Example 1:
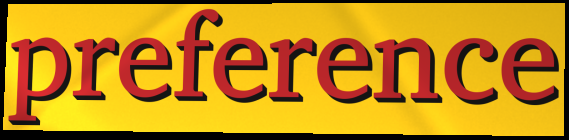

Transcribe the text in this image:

preference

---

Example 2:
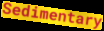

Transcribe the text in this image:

Sedimentary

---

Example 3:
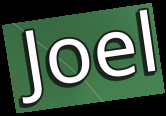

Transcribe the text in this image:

Joel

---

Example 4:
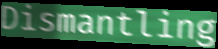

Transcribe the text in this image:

Dismantling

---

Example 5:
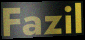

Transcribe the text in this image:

Fazil